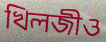
খিলজীও